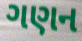
ગણન